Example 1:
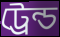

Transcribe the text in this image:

ট্রেন্ড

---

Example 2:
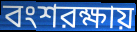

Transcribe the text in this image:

বংশরক্ষায়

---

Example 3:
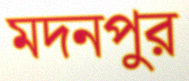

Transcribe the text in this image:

মদনপুর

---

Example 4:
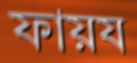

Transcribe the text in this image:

ফায়য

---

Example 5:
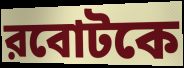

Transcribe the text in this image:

রবোটকে